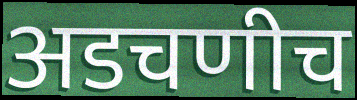
अडचणीच